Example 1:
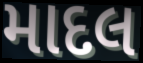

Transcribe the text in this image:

માદલ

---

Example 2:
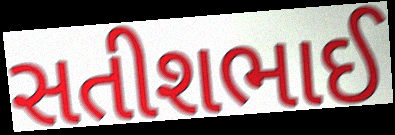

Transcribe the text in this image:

સતીશભાઈ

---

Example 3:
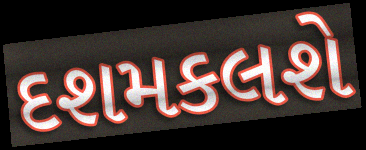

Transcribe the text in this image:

દશમકલશે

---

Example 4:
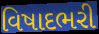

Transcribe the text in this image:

વિષાદભરી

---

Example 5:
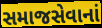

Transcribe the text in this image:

સમાજસેવાનાં